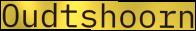
Oudtshoorn